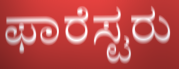
ಫಾರೆಸ್ಟರು